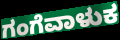
ಗಂಗೆವಾಳುಕ